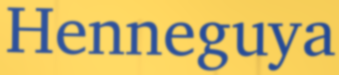
Henneguya